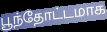
பூந்தோட்டமாக